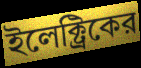
ইলেক্ট্রিকের